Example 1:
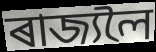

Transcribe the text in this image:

ৰাজ্যলৈ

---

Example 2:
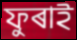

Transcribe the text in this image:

ফুৰাই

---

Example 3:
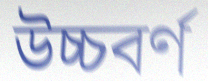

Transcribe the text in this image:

উচ্চবৰ্ণ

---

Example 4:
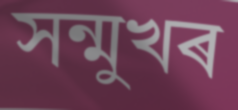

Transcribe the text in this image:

সন্মুখৰ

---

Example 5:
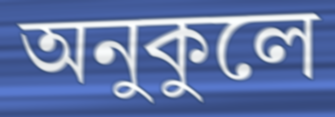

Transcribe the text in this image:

অনুকুলে